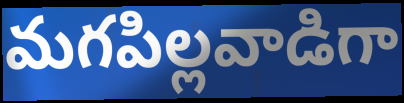
మగపిల్లవాడిగా